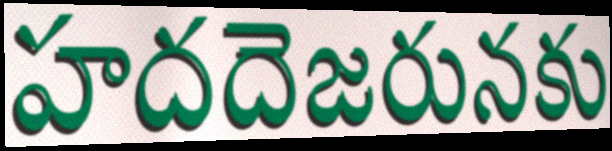
హదదెజరునకు